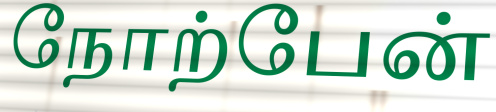
நோற்பேன்